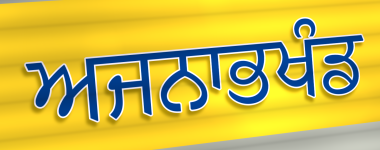
ਅਜਨਾਭਖੰਡ